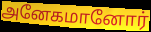
அனேகமானோர்